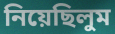
নিয়েছিলুম